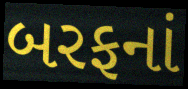
બરફનાં